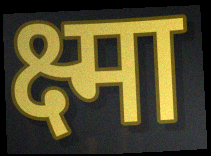
क्ष्मा